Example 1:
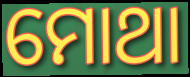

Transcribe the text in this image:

ମୋଥା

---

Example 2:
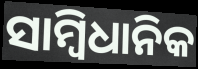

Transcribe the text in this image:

ସାମ୍ବିଧାନିକ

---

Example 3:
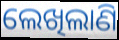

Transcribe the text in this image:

ଲେଖିଲାଣି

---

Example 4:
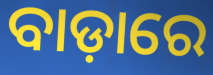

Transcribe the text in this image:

ବାଡ଼ାରେ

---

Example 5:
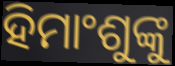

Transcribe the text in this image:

ହିମାଂଶୁଙ୍କୁ